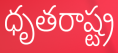
ధృతరాష్ట్ర